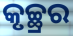
କୃଚ୍ଛ୍ରର